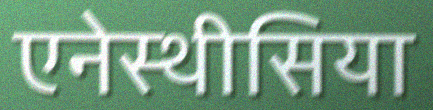
एनेस्थीसिया